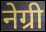
नेग्री